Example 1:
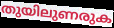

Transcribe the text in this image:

തുയിലുണരുക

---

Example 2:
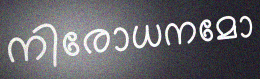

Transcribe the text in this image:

നിരോധനമോ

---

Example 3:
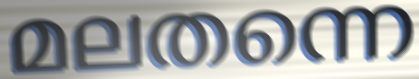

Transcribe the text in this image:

മലതന്നെ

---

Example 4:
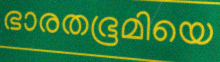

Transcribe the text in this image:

ഭാരതഭൂമിയെ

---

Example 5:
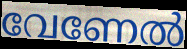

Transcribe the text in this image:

വേണേൽ